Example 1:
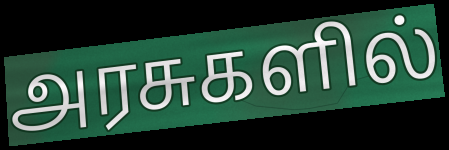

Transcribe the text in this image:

அரசுகளில்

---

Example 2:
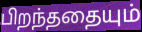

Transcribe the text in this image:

பிறந்ததையும்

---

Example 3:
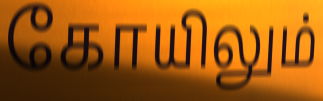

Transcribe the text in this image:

கோயிலும்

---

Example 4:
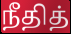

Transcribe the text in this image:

நீதித்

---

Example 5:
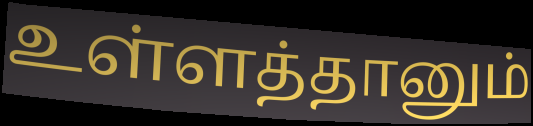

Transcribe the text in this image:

உள்ளத்தானும்